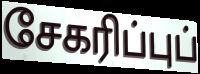
சேகரிப்புப்